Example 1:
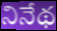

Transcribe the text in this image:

నినేథ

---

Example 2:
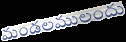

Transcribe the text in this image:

మండలములందు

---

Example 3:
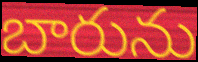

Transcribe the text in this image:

బారును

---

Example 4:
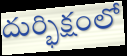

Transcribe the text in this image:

దుర్భిక్షంలో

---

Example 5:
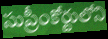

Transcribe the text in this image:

సుప్రీంకోర్టులోని